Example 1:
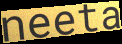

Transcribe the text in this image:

neeta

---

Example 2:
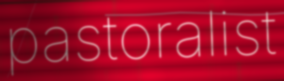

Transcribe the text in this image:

pastoralist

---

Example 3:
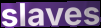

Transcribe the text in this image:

slaves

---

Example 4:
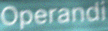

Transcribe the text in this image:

Operandi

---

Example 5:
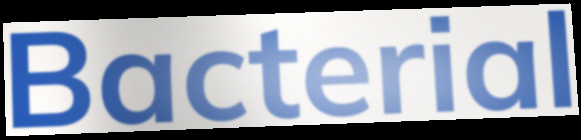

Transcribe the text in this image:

Bacterial